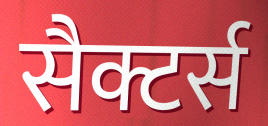
सैक्टर्स